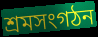
শ্রমসংগঠন